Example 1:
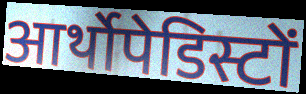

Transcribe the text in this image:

आर्थोपेडिस्टों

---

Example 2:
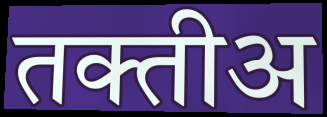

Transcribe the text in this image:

तक्तीअ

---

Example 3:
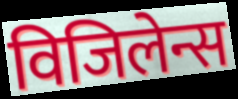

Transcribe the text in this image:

विजिलेन्स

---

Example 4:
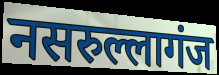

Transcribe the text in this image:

नसरुल्लागंज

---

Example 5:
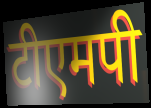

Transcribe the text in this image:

टीएमपी